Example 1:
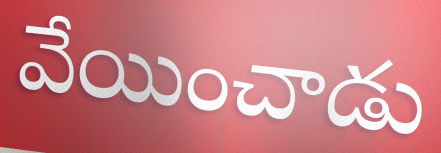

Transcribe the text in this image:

వేయించాడు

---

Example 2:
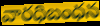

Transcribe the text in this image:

వారధిబంధన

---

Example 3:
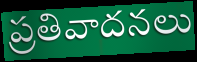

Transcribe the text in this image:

ప్రతివాదనలు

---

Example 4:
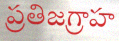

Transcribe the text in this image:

ప్రతిజగ్రాహ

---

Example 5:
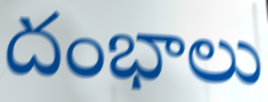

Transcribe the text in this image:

దంభాలు